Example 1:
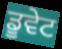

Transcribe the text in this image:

ਡੂਵੇਟ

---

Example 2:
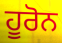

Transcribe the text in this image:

ਹੂਰੋਨ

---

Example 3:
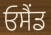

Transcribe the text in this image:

ਓਸੈਂਡ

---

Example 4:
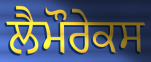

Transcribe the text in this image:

ਲੈਮੌਰੇਕਸ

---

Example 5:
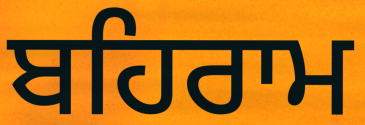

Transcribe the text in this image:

ਬਹਿਰਾਮ